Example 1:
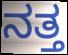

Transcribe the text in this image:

ನತ್ತ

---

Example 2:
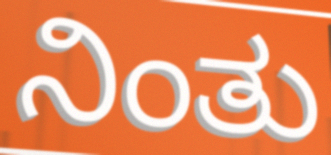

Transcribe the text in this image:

ನಿಂತು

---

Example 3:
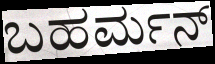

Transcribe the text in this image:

ಬಹರ್ಮನ್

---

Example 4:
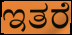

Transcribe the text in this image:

ಇತರೆ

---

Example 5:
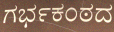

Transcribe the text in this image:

ಗರ್ಭಕಂಠದ